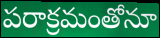
పరాక్రమంతోనూ